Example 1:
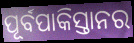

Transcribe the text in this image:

ପୂର୍ବପାକିସ୍ତାନର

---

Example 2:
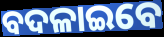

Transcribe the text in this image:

ବଦଳାଇବେ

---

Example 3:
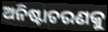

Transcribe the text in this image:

ଅନିଷ୍ଟାଚରଣକୁ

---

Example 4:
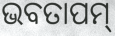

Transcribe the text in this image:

ଭବତାପମ୍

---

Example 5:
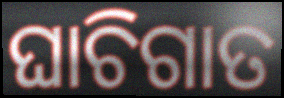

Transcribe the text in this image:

ଘାଚିଗାତ